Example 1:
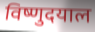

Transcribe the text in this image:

विष्णुदयाल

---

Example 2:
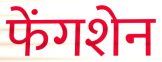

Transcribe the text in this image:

फेंगशेन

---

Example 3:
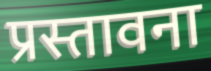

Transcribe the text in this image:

प्रस्तावना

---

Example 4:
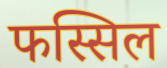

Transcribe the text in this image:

फस्सिल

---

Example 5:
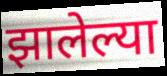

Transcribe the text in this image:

झालेल्या